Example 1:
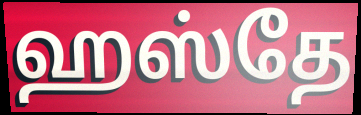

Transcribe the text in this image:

ஹஸ்தே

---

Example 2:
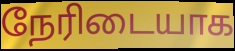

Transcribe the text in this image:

நேரிடையாக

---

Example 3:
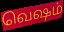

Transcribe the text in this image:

வெஷம்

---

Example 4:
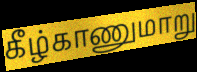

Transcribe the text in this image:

கீழ்காணுமாறு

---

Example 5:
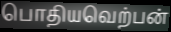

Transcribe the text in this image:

பொதியவெற்பன்